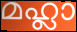
മഹ്ലാ